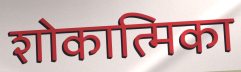
शोकात्मिका